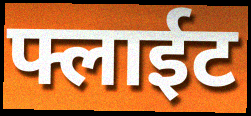
फ्लाईट